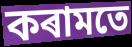
কৰামতে